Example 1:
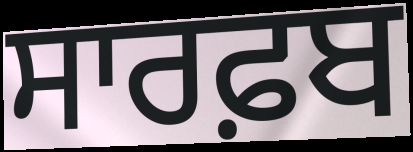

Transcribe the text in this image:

ਸਾਰਫ਼ਬ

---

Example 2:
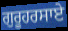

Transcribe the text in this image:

ਗੁਰੂਹਰਸਾਏ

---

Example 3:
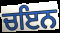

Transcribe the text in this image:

ਚਇਨ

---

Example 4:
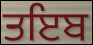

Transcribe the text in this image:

ਤਇਬ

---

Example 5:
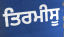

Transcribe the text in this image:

ਤਿਰਮੀਸੂ